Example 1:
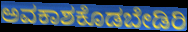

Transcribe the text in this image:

ಅವಕಾಶಕೊಡಬೇಡಿರಿ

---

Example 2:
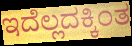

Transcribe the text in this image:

ಇದೆಲ್ಲದಕ್ಕಿಂತ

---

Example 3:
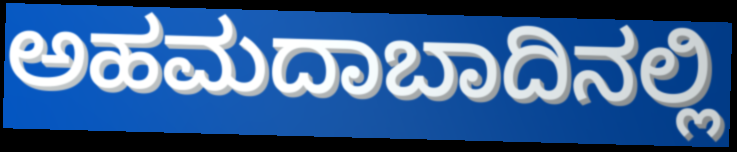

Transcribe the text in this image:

ಅಹಮದಾಬಾದಿನಲ್ಲಿ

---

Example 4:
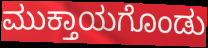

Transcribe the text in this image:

ಮುಕ್ತಾಯಗೊಂಡು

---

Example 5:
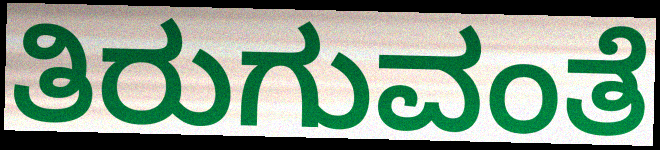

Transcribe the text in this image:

ತಿರುಗುವಂತೆ